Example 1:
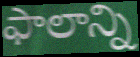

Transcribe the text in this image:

ఫాలాన్ని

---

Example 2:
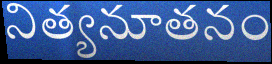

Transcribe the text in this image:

నిత్యనూతనం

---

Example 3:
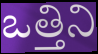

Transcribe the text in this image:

ఒత్తిని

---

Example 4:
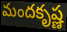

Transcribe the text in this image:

మందకృష్ణ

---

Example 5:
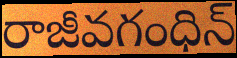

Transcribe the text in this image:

రాజీవగంధిన్